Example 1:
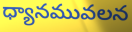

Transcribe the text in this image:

ధ్యానమువలన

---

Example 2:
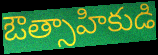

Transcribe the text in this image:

ఔత్సాహికుడి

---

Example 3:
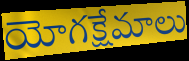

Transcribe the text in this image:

యోగక్షేమాలు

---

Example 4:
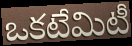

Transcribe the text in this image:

ఒకటేమిటీ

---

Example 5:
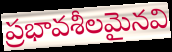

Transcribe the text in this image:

ప్రభావశీలమైనవి